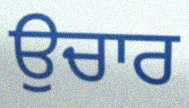
ਉਚਾਰ